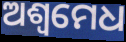
ଅଶ୍ବମେଧ